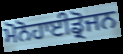
ਮੋਨੋਹਾਈਡ੍ਰੋਜਨ